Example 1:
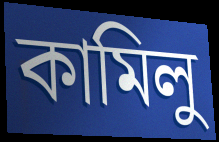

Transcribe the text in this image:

কামিলু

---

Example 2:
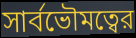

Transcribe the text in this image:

সার্বভৌমত্বের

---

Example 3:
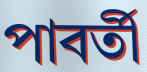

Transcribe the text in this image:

পাবর্তী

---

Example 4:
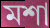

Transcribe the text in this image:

মশা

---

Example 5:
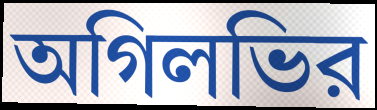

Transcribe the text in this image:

অগিলভির